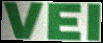
VEI